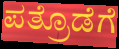
ಪತ್ರೊಡೆಗೆ